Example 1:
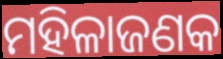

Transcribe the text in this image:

ମହିଳାଜଣକ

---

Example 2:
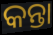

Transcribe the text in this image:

କନ୍ତା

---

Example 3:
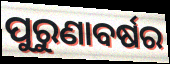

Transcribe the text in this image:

ପୁରୁଣାବର୍ଷର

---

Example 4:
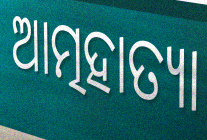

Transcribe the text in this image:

ଆତ୍ମହାତ୍ୟା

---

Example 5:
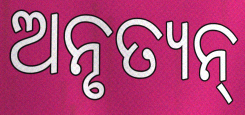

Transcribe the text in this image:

ଅନୃତ୍ୟନ୍